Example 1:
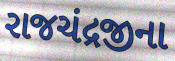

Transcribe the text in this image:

રાજચંદ્રજીના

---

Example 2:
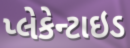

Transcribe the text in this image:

પ્લેકેન્ટાઇડ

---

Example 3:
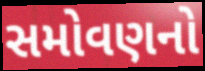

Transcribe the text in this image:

સમોવણનો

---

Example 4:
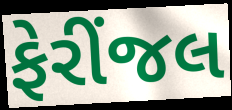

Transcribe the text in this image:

ફેરીંજલ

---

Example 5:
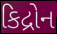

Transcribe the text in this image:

કિદ્રોન